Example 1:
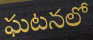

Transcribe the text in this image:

ఘటనలో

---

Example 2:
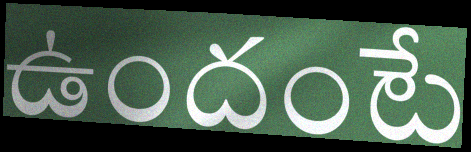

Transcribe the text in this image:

ఉందంటే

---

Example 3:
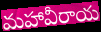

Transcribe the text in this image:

మహావీరాయ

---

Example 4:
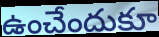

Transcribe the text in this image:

ఉంచేందుకూ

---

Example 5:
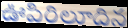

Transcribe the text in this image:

ఊపిరిలూదిన